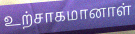
உற்சாகமானாள்